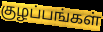
குழப்பங்கள்